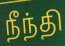
நீந்தி